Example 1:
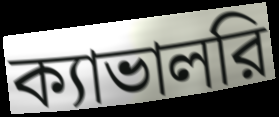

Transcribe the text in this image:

ক্যাভালরি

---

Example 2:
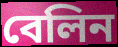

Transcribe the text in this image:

বেলিন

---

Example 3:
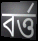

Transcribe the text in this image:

বর্ত্ত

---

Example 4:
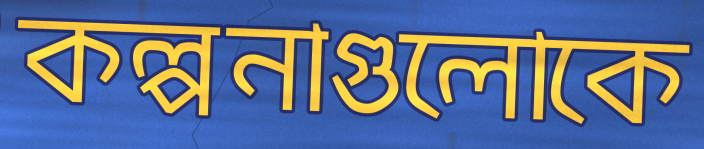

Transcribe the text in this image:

কল্পনাগুলোকে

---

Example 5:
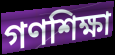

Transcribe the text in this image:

গণশিক্ষা